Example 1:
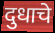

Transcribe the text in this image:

दुधाचे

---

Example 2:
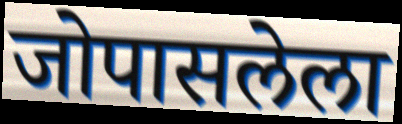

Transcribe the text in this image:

जोपासलेला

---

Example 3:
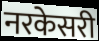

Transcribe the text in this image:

नरकेसरी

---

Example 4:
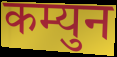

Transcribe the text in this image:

कम्युन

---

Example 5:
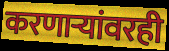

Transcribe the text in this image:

करणाऱ्यांवरही